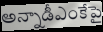
అన్నాడీఎంకేపై